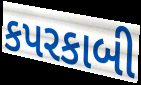
કપરકાબી